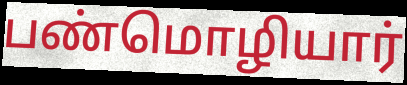
பண்மொழியார்